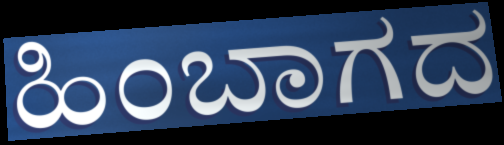
ಹಿಂಬಾಗದ